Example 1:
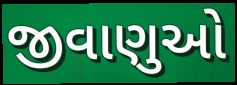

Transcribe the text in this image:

જીવાણુઓ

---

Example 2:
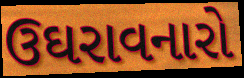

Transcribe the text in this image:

ઉઘરાવનારો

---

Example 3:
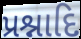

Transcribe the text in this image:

પ્રશ્નાદિ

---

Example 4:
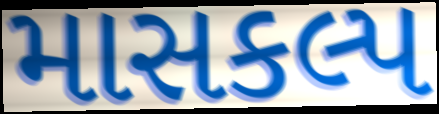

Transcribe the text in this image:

માસકલ્પ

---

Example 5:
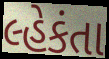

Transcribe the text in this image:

લ્હેકંતા